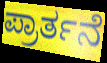
ಪ್ರಾರ್ತನೆ